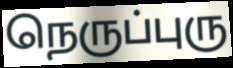
நெருப்புரு